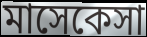
মাসেকেসা